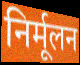
निर्मूलन